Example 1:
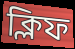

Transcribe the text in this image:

ক্লিফ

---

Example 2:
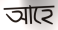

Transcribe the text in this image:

আহে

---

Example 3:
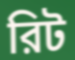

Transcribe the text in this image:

রিট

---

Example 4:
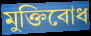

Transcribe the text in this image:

মুক্তিবোধ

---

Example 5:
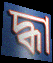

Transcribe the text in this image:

দ্ধা